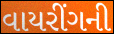
વાયરીંગની